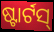
ଷ୍ଟାର୍ଟସ୍